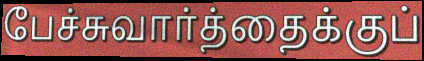
பேச்சுவார்த்தைக்குப்